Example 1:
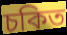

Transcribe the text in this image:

চকিত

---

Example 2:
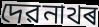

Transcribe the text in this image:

দেৱনাথৰ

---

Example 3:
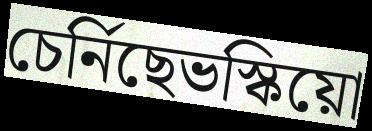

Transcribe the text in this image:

চেৰ্নিছেভস্কিয়ো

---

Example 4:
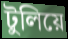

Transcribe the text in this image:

টুলিয়ে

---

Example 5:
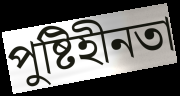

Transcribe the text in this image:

পুষ্টিহীনতা